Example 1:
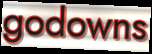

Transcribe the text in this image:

godowns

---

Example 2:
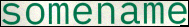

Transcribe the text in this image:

somename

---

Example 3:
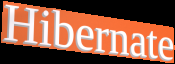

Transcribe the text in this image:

Hibernate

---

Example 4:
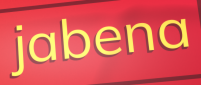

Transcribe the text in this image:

jabena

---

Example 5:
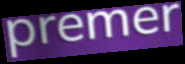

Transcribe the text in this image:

premer